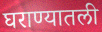
घराण्यातली